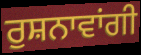
ਰੁਸ਼ਨਾਵਾਂਗੀ